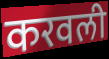
करवली